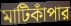
মাটিকাঁপার